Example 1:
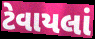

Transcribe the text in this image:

ટેવાયલાં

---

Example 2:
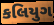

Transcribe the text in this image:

કલિયુગ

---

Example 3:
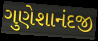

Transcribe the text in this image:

ગુણેશાનંદજી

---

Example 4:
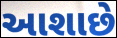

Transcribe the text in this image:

આશાછે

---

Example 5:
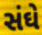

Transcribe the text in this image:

સંઘે